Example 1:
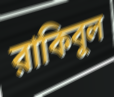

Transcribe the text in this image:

রাকিবুল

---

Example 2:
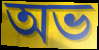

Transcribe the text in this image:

অভ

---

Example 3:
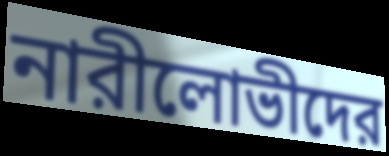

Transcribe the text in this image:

নারীলোভীদের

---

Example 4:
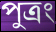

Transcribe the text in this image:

পুত্রং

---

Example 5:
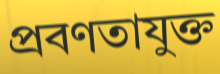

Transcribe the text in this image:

প্রবণতাযুক্ত